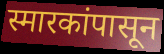
स्मारकांपासून